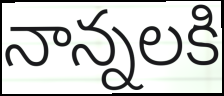
నాన్నలకి